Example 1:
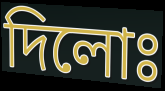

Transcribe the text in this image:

দিলোঃ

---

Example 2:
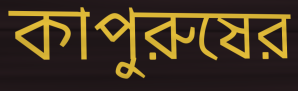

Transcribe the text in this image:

কাপুরুষের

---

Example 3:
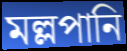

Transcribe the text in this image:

মল্লপানি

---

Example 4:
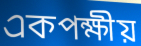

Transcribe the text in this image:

একপক্ষীয়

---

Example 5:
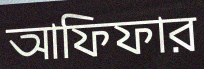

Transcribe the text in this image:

আফিফার